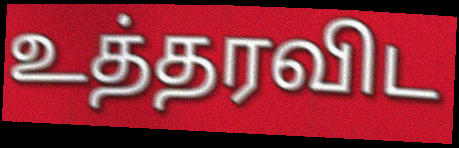
உத்தரவிட